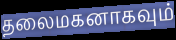
தலைமகனாகவும்